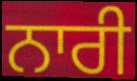
ਨਾਰੀ